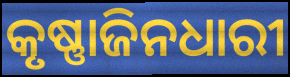
କୃଷ୍ଣାଜିନଧାରୀ